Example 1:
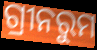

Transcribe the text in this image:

ଗ୍ରୀନରୁମ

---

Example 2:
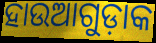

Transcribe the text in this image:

ହାଉଆଗୁଡ଼ାକ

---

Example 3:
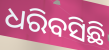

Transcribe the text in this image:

ଧରିବସିଛି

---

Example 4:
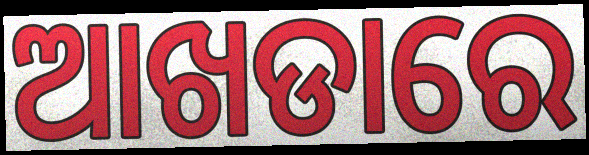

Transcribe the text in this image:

ଆଖଡାରେ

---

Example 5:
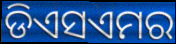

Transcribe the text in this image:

ଡିଏସଏମର